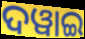
ଦୱାଇ